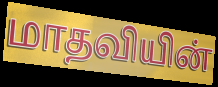
மாதவியின்